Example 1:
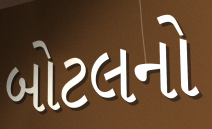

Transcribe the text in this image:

બોટલનો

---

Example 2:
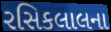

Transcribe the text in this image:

રસિકલાલના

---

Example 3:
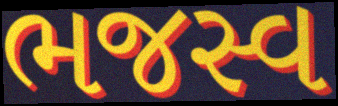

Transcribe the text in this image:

ભજસ્વ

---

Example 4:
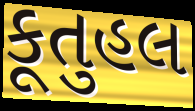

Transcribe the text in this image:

કૂતુહલ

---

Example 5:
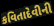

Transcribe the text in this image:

કવિતાદેવીની